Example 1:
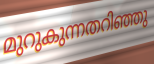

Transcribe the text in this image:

മുറുകുന്നതറിഞ്ഞു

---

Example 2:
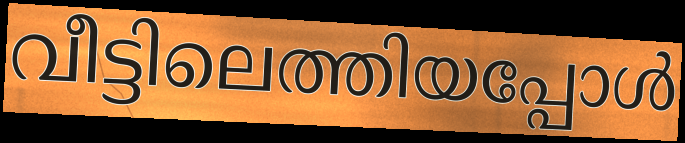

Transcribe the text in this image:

വീട്ടിലെത്തിയപ്പോൾ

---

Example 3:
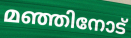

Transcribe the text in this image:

മഞ്ഞിനോട്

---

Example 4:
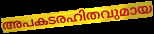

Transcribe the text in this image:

അപകടരഹിതവുമായ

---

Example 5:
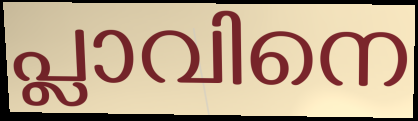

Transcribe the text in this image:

പ്ലാവിനെ